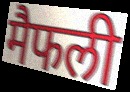
मैफली